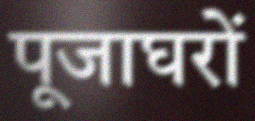
पूजाघरों